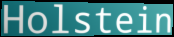
Holstein